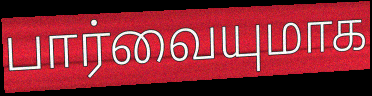
பார்வையுமாக